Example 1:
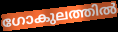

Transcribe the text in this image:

ഗോകുലത്തിൽ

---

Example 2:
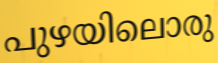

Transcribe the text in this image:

പുഴയിലൊരു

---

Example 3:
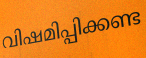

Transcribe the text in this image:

വിഷമിപ്പിക്കണ്ട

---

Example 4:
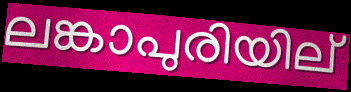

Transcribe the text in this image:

ലങ്കാപുരിയില്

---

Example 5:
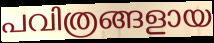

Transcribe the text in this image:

പവിത്രങ്ങളായ